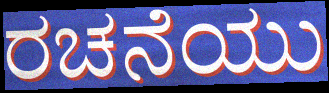
ರಚನೆಯು